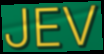
JEV